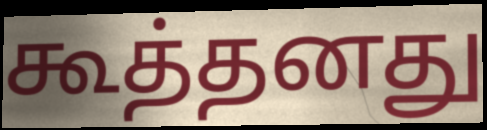
கூத்தனது